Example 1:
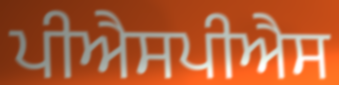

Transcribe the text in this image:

ਪੀਐਸਪੀਐਸ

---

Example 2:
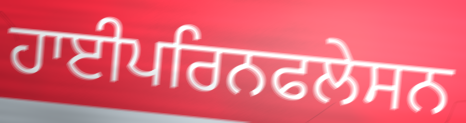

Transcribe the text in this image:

ਹਾਈਪਰਿਨਫਲੇਸਨ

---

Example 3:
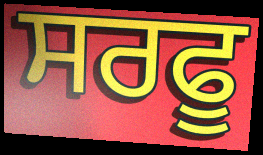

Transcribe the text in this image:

ਸਰਫੂ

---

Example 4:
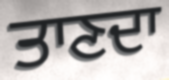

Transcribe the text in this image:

ਤਾਣਦਾ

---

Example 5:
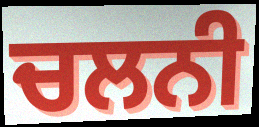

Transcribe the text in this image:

ਚਲਨੀ